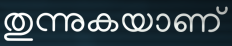
തുന്നുകയാണ്